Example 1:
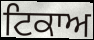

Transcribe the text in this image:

ਟਿਕਾਅ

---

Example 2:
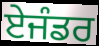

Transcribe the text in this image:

ਏਜੰਡਰ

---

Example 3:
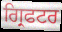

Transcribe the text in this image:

ਗ੍ਰਿਫਟਰ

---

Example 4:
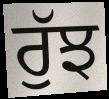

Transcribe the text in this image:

ਰੁੱਝ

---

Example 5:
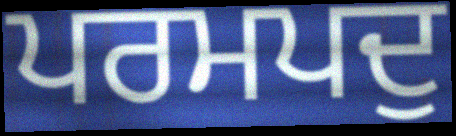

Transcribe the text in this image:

ਪਰਮਪਦੁ